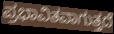
ಪ್ರಭಾವಿತವಾಗುತ್ತದೆ